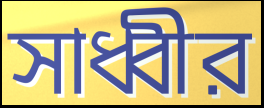
সাধ্বীর